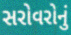
સરોવરોનું